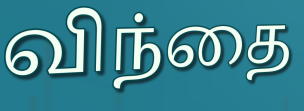
விந்தை